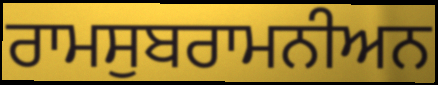
ਰਾਮਸੁਬਰਾਮਨੀਅਨ